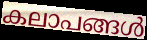
കലാപങ്ങൾ